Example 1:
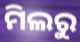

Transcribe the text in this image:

ମିଲରୁ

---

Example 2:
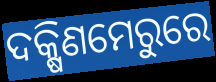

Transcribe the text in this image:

ଦକ୍ଷିଣମେରୁରେ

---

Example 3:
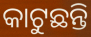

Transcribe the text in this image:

କାଟୁଛନ୍ତି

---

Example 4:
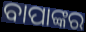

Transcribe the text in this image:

ବାପାଙ୍କର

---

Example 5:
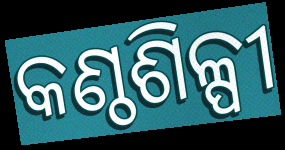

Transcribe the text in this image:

କଣ୍ଠଶିଳ୍ପୀ